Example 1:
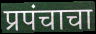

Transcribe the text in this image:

प्रपंचाचा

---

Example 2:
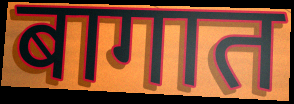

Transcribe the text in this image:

बागात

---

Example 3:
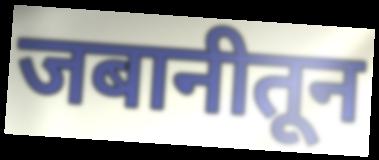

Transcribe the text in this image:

जबानीतून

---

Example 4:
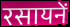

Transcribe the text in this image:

रसायनें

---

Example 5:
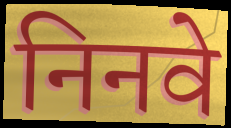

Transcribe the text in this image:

निनवे